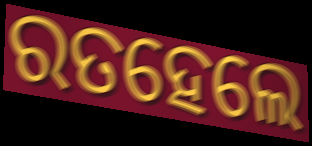
ରତହେଲେ